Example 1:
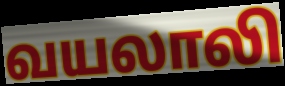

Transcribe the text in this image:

வயலாலி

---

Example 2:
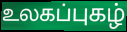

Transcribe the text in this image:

உலகப்புகழ்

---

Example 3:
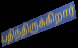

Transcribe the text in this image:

பதிந்திருக்கிறார்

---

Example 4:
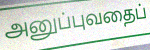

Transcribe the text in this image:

அனுப்புவதைப்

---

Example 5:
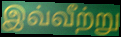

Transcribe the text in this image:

இவ்வீற்று